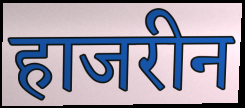
हाजरीन